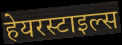
हेयरस्टाइल्स